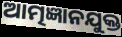
ଆତ୍ମଜ୍ଞାନଯୁକ୍ତ